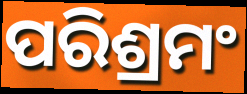
ପରିଶ୍ରମଂ